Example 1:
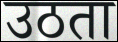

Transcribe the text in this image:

उठता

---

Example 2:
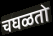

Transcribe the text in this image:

चघळतो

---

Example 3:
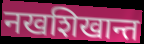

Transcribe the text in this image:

नखशिखान्त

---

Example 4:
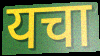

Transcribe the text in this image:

यचा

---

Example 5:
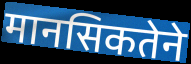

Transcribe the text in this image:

मानसिकतेने